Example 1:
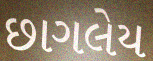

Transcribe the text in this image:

છાગલેય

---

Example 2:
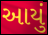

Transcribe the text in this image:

આયું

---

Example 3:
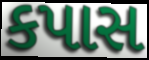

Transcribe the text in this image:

કપાસ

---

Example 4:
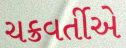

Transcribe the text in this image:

ચક્રવર્તીએ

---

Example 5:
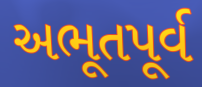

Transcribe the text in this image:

અભૂતપૂર્વ